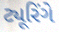
ટ્યૂરિંગે